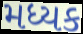
મધ્યક